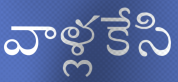
వాళ్లకేసి